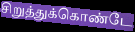
சிறுத்துக்கொண்டே